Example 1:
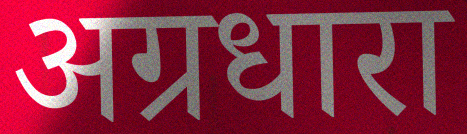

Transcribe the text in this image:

अग्रधारा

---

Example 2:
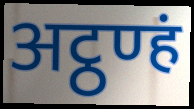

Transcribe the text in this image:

अट्ठण्हं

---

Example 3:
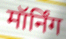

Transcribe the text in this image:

मॉर्निंग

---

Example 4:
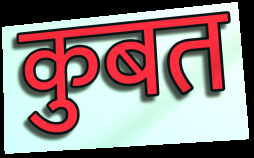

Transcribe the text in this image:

कुबत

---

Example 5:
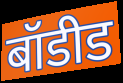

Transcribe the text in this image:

बॉडीड